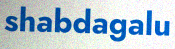
shabdagalu